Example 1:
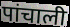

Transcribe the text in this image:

पांचाली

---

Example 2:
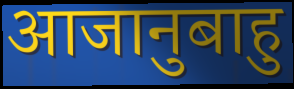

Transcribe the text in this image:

आजानुबाहु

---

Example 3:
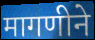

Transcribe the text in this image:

मागणीने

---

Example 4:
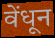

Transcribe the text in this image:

वेंधून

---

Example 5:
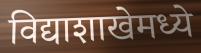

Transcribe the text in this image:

विद्याशाखेमध्ये